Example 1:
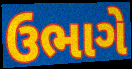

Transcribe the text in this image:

ઉભાગે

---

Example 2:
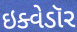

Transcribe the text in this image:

ઇક્વેડૉર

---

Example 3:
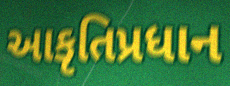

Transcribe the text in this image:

આકૃતિપ્રધાન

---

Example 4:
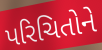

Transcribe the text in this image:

પરિચિતોને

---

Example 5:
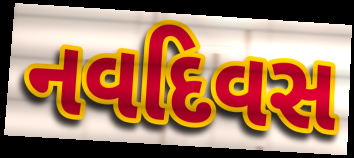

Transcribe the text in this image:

નવદિવસ